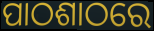
ପାଠଶାଠରେ